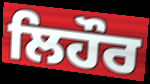
ਲਿਹੌਰ